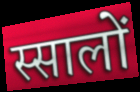
स्सालों